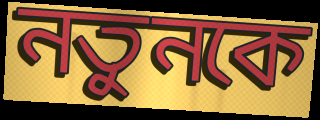
নতুনকে